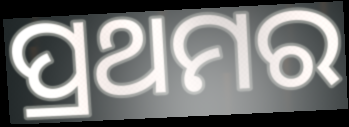
ପ୍ରଥମର